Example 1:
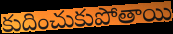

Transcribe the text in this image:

కుదించుకుపోతాయి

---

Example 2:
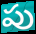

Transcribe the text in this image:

పు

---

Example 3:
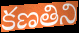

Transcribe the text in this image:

కణతిని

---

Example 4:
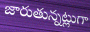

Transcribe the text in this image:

జారుతున్నట్లుగా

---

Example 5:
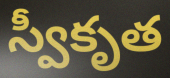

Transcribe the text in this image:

స్వీకృత